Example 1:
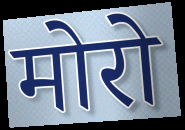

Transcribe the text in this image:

मोरो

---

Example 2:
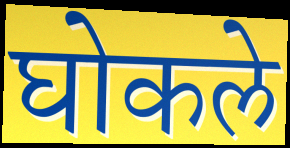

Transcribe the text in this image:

घोकले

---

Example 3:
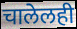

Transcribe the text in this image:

चालेलही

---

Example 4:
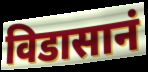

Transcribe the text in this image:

विडासानं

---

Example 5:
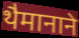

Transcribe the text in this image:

थैमानाने